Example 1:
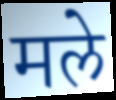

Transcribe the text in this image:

मले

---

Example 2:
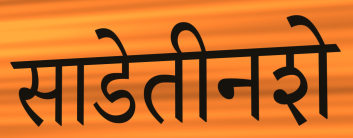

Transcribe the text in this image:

साडेतीनशे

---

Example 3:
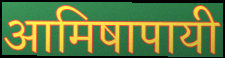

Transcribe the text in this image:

आमिषापायी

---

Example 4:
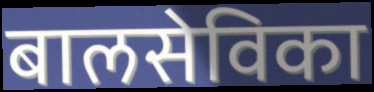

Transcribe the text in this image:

बालसेविका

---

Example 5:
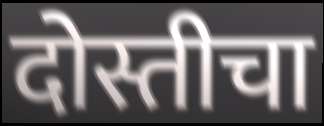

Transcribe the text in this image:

दोस्तीचा